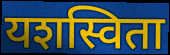
यशस्विता